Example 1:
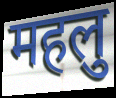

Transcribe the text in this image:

महलु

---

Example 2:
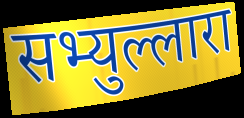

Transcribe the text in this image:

सभ्युल्लारा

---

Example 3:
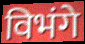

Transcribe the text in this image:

विभंगे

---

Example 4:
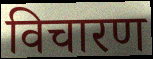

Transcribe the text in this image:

विचारण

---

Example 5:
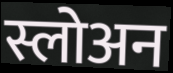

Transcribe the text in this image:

स्लोअन